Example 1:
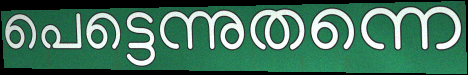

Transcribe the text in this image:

പെട്ടെന്നുതന്നെ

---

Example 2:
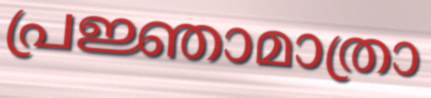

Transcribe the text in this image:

പ്രജ്ഞാമാത്രാ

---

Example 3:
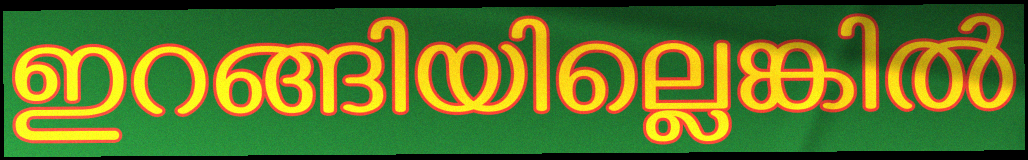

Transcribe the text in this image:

ഇറങ്ങിയില്ലെങ്കിൽ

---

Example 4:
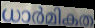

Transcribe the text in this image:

ധാർമികത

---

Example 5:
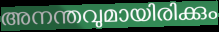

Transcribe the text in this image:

അനന്തവുമായിരിക്കും